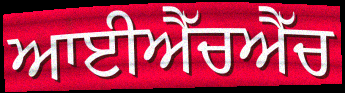
ਆਈਐੱਚਐੱਚ